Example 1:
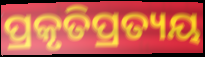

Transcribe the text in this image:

ପ୍ରକୃତିପ୍ରତ୍ୟୟ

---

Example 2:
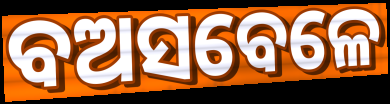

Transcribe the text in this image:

ବଅସବେଳେ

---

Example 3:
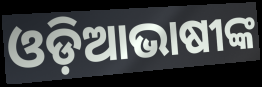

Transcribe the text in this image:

ଓଡ଼ିଆଭାଷୀଙ୍କ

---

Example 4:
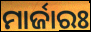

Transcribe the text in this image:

ମାର୍ଜାରଃ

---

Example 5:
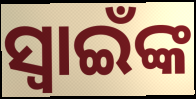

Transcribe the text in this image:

ସ୍ଵାଇଁଙ୍କ